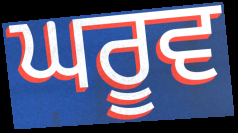
ਘਰੂਵ